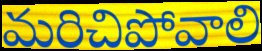
మరిచిపోవాలి